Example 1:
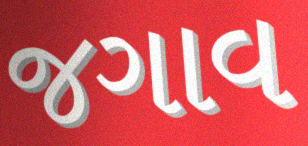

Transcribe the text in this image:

જગાવ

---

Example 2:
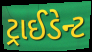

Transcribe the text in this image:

ટ્રાઈડેન્ટ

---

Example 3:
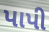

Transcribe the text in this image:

પાપી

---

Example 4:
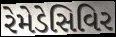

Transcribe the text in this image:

રેમેડેસિવિર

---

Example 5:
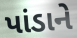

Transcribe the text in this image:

પાંડાને